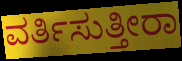
ವರ್ತಿಸುತ್ತೀರಾ